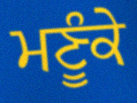
ਮਣੂੰਕੇ